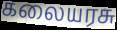
கலையரசு